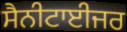
ਸੈਨੀਟਾਈਜਰ